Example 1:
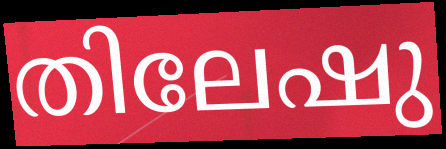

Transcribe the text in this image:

തിലേഷു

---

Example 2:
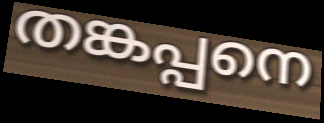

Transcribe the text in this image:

തങ്കപ്പനെ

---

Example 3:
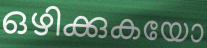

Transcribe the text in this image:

ഒഴിക്കുകയോ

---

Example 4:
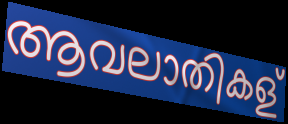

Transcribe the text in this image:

ആവലാതികള്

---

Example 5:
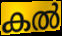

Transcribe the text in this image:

കൽ